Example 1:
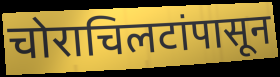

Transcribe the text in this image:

चोराचिलटांपासून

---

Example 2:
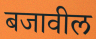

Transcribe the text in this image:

बजावील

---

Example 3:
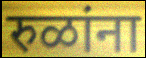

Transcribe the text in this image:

रुळांना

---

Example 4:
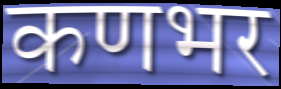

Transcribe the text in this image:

कणभर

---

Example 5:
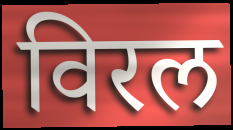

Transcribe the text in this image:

विरल